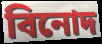
বিনোদ